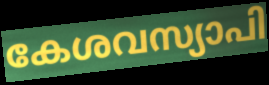
കേശവസ്യാപി